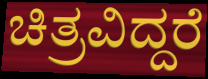
ಚಿತ್ರವಿದ್ದರೆ